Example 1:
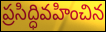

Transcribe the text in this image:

ప్రసిద్ధివహించిన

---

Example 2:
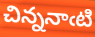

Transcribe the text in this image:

చిన్ననాఁటి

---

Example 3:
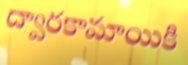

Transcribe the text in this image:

ద్వారకామాయికి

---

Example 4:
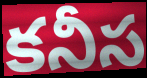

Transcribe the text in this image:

కనీస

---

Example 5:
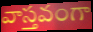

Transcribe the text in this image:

వాస్తవంగా